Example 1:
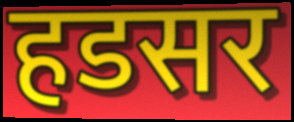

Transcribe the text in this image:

हडसर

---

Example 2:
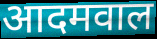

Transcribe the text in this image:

आदमवाल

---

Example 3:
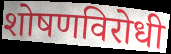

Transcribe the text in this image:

शोषणविरोधी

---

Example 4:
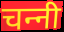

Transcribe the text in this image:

चन्नी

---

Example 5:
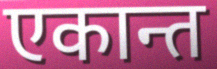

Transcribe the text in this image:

एकान्त